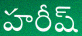
హరీష్